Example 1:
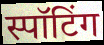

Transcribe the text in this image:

स्पॉटिंग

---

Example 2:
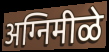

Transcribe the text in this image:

अग्निमीळे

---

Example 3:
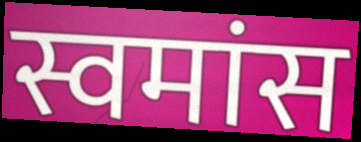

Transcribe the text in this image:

स्वमांस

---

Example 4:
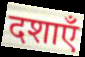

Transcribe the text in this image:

दशाएँ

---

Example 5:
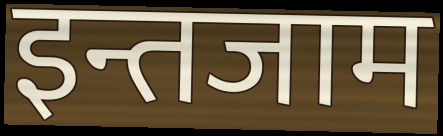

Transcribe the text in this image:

इन्तजाम